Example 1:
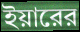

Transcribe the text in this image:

ইয়ারের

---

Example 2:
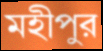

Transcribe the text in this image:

মহীপুর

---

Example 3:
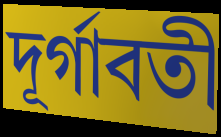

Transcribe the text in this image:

দূর্গাবতী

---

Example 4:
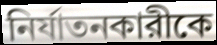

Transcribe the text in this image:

নির্যাতনকারীকে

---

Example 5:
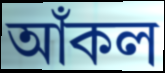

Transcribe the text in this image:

আঁকল